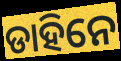
ଡାହିନେ